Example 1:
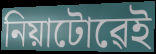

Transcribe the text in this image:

নিয়াটোৱেই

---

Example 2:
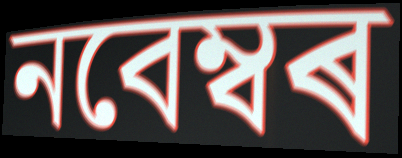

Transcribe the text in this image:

নবেম্বৰ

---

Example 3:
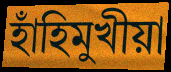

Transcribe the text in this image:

হাঁহিমুখীয়া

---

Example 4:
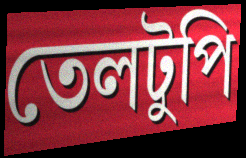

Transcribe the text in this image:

তেলটুপি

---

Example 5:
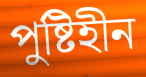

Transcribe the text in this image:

পুষ্টিহীন